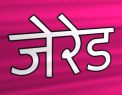
जेरेड